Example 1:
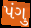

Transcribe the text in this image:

પંગુ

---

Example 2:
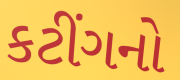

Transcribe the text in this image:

કટીંગનો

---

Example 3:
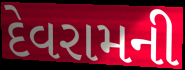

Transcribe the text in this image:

દેવરામની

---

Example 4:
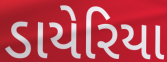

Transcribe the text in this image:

ડાયેરિયા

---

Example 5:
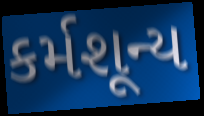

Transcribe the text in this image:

કર્મશૂન્ય